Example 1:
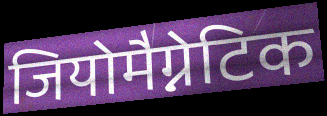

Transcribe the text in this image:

जियोमैग्नेटिक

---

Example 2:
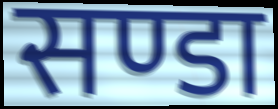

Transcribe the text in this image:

सण्डा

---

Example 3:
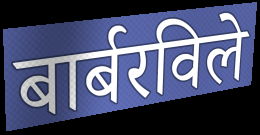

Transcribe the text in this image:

बार्बरविले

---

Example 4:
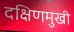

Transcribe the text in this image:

दक्षिणमुखी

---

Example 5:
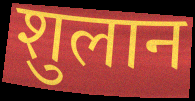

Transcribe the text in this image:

शुलान